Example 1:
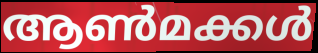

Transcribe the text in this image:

ആൺമക്കൾ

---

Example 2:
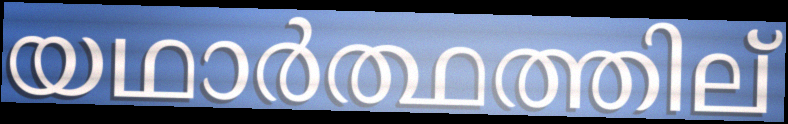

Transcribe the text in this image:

യഥാർത്ഥത്തില്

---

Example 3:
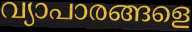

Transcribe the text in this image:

വ്യാപാരങ്ങളെ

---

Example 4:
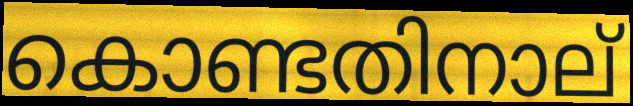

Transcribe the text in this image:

കൊണ്ടതിനാല്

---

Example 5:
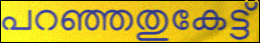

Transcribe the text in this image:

പറഞ്ഞതുകേട്ട്